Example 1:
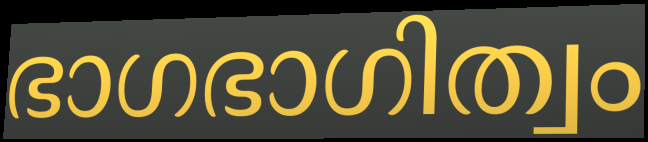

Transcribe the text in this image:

ഭാഗഭാഗിത്വം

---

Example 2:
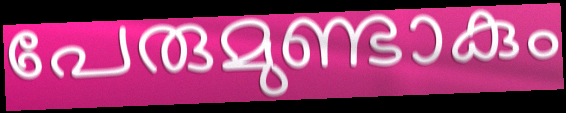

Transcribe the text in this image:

പേരുമുണ്ടാകും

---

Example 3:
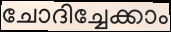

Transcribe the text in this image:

ചോദിച്ചേക്കാം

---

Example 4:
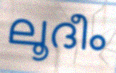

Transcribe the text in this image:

ലൂദീം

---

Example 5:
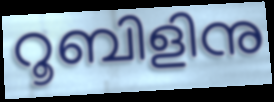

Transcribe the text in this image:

റൂബിളിനു